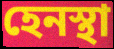
হেনস্থা